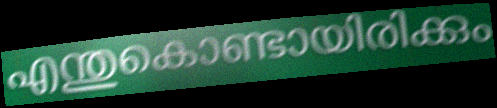
എന്തുകൊണ്ടായിരിക്കും